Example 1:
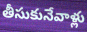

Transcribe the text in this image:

తీసుకునేవాళ్లు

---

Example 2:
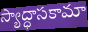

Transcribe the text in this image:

స్యాద్ధాసకామా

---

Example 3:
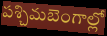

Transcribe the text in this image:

పశ్చిమబెంగాల్లో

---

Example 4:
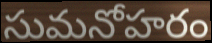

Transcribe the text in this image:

సుమనోహరం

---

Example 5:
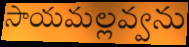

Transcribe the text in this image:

సాయమల్లవ్వను